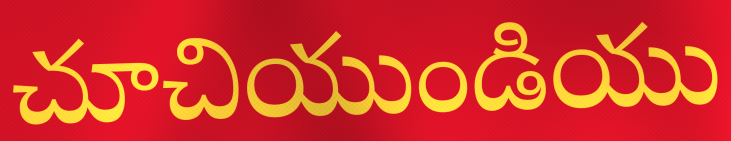
చూచియుండియు